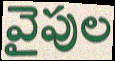
వైపుల